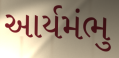
આર્યમંભુ